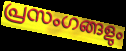
പ്രസംഗങ്ങളും